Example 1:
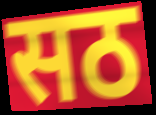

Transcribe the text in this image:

सठ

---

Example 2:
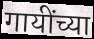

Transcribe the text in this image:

गायींच्या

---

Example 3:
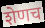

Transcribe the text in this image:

शेणच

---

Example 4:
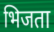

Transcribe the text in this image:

भिजता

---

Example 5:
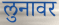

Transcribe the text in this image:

लुनावर